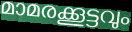
മാമരക്കൂട്ടവും